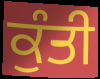
ਕੁੰਤੀ